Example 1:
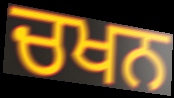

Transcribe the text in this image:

ਚਖਨ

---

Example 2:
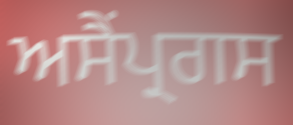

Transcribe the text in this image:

ਅਸੈਂਪ੍ਰਗਸ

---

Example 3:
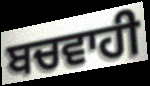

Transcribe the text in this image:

ਬਚਵਾਹੀ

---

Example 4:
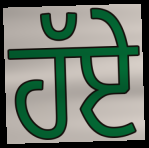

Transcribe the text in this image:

ਹੱਏ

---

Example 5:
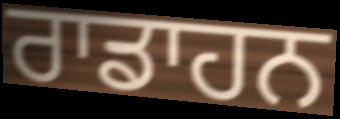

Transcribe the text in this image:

ਰਾਡਾਹਨ